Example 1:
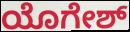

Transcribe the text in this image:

ಯೊಗೇಶ್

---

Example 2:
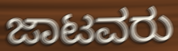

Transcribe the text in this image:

ಜಾಟವರು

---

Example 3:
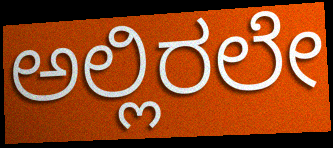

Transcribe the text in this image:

ಅಲ್ಲಿರಲೇ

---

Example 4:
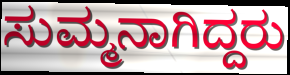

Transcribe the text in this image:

ಸುಮ್ಮನಾಗಿದ್ದರು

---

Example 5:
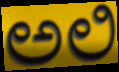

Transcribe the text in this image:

ಅಲಿ